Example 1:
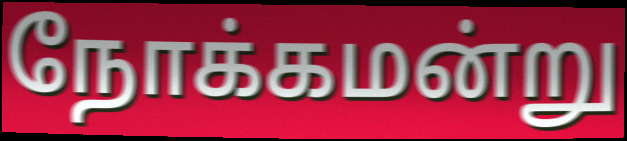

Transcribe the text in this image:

நோக்கமன்று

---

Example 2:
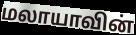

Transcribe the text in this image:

மலாயாவின்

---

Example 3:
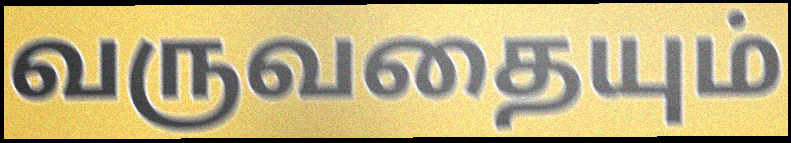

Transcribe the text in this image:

வருவதையும்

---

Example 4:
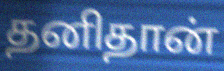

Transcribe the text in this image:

தனிதான்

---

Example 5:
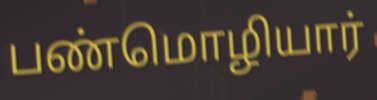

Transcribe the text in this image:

பண்மொழியார்